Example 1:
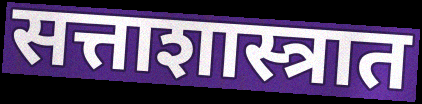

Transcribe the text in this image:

सत्ताशास्त्रात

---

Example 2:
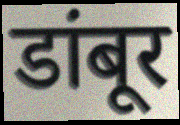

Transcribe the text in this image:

डांबूर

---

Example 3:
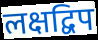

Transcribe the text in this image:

लक्षद्विप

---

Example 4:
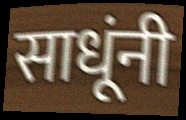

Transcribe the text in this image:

साधूंनी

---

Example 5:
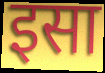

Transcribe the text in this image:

इसा